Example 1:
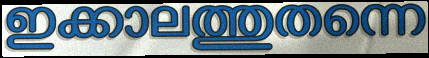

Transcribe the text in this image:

ഇക്കാലത്തുതന്നെ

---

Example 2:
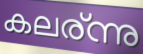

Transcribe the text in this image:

കലര്ന്നു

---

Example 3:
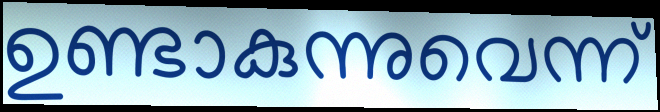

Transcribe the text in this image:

ഉണ്ടാകുന്നുവെന്ന്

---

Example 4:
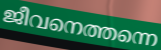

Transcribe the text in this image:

ജീവനെത്തന്നെ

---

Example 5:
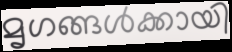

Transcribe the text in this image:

മൃഗങ്ങൾക്കായി